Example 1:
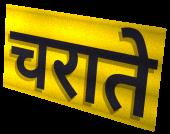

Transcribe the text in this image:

चराते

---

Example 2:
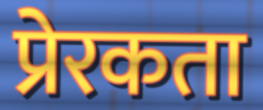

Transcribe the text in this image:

प्रेरकता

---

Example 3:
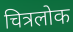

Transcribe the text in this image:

चित्रलोक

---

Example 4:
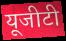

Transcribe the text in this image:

यूजीटी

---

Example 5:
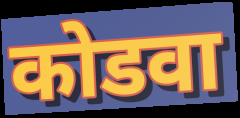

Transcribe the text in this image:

कोडवा